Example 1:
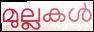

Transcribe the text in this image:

മുല്ലകൾ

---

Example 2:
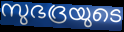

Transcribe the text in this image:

സുഭദ്രയുടെ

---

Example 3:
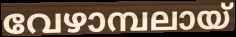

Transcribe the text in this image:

വേഴാമ്പലായ്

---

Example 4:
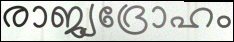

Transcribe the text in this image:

രാജ്യദ്രോഹം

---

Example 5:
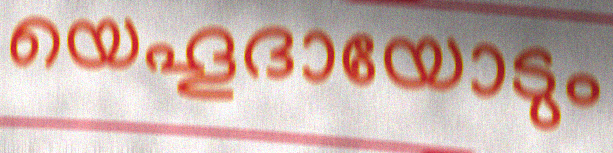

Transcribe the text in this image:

യെഹൂദായോടും